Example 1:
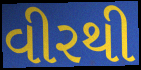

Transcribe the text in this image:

વીરથી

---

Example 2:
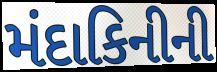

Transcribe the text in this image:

મંદાકિનીની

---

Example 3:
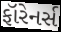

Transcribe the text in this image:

ફૉરેનર્સ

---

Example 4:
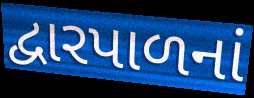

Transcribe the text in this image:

દ્વારપાળનાં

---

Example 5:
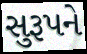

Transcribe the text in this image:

સુરૂપને